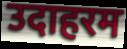
उदाहरम